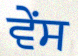
ਵੇਂਸ